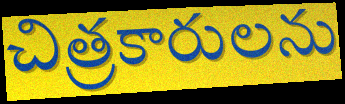
చిత్రకారులను